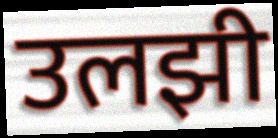
उलझी